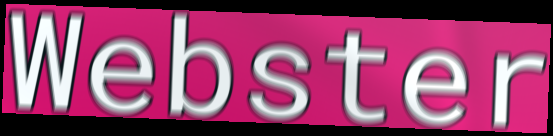
Webster